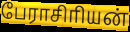
பேராசிரியன்